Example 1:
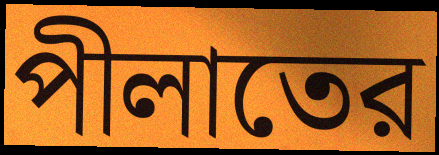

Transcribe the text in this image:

পীলাতের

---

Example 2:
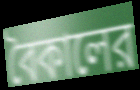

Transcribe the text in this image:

বৈকালের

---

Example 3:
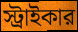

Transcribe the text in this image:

স্ট্রাইকার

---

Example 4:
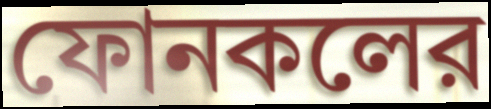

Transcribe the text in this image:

ফোনকলের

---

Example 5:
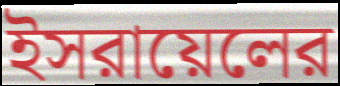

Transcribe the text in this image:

ইসরায়েলের